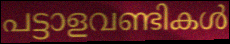
പട്ടാളവണ്ടികൾ